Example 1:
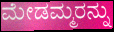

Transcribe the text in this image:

ಮೇಡಮ್ಮರನ್ನು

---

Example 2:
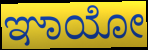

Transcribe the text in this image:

ಞಾಯೋ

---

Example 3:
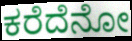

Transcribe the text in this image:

ಕರೆದೆನೋ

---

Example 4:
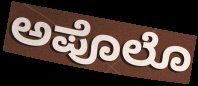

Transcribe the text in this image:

ಅಪೊಲೊ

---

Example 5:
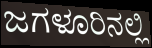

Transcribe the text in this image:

ಜಗಳೂರಿನಲ್ಲಿ